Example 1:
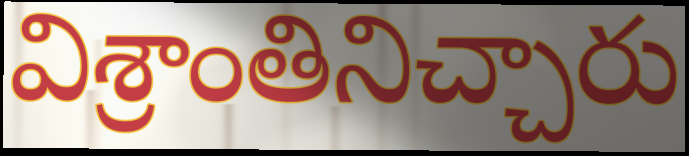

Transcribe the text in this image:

విశ్రాంతినిచ్చారు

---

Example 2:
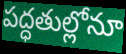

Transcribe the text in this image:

పద్ధతుల్లోనూ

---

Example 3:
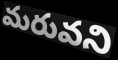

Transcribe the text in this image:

మరువని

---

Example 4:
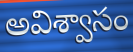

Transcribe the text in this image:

అవిశ్వాసం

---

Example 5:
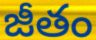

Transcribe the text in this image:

జీతం